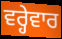
ਵਰ੍ਹੇਵਾਰ